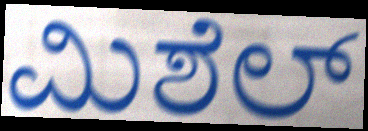
ಮಿಶೆಲ್